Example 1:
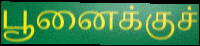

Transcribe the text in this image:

பூனைக்குச்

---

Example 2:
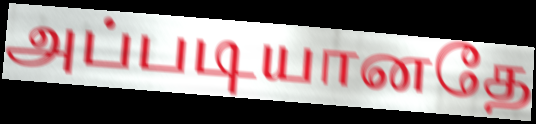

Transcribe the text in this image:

அப்படியானதே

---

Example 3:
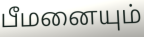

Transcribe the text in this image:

பீமனையும்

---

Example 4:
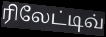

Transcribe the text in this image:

ரிலேட்டிவ்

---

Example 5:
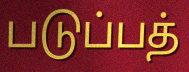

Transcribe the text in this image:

படுப்பத்